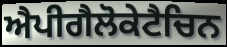
ਐਪੀਗੈਲੋਕੇਟੈਚਿਨ